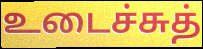
உடைச்சுத்